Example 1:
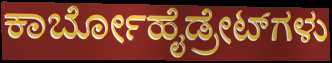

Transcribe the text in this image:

ಕಾರ್ಬೋಹೈಡ್ರೇಟ್‌ಗಳು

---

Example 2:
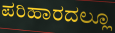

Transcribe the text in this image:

ಪರಿಹಾರದಲ್ಲೂ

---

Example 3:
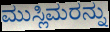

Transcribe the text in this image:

ಮುಸ್ಲಿಮರನ್ನು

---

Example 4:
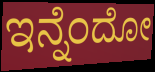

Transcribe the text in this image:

ಇನ್ನೆಂದೋ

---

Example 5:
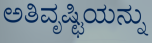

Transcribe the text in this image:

ಅತಿವೃಷ್ಟಿಯನ್ನು